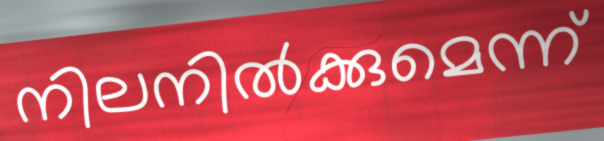
നിലനിൽക്കുമെന്ന്